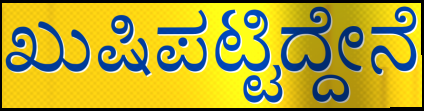
ಖುಷಿಪಟ್ಟಿದ್ದೇನೆ